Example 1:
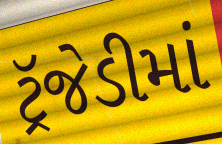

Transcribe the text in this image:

ટ્રૅજેડીમાં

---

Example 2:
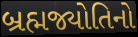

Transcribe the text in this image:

બ્રહ્મજ્યોતિનો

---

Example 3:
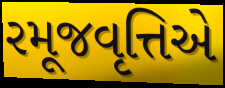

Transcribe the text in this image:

રમૂજવૃત્તિએ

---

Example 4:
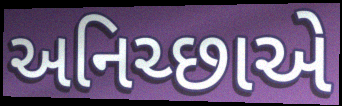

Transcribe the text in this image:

અનિચ્છાએ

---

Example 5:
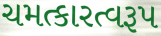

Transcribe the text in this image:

ચમત્કારત્વરૂપ